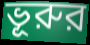
ভূরুর